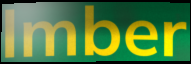
Imber